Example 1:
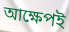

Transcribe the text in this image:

আক্ষেপই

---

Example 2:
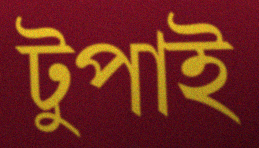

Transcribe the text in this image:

টুপাই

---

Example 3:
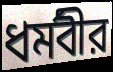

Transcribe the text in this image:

ধর্মবীর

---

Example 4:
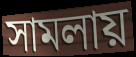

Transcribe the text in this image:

সামলায়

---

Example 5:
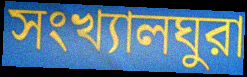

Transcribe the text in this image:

সংখ্যালঘুরা